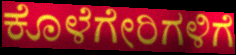
ಕೊಳೆಗೇರಿಗಳಿಗೆ